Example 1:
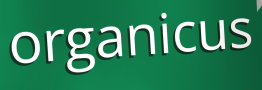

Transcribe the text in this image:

organicus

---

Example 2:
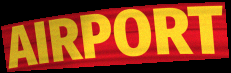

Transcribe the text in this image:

AIRPORT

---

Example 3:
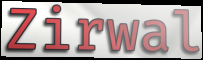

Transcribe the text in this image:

Zirwal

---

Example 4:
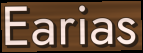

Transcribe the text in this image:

Earias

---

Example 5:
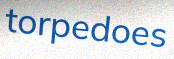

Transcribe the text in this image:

torpedoes